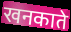
खनकाते